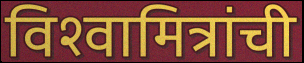
विश्वामित्रांची